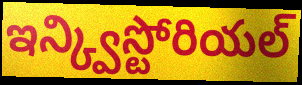
ఇన్క్విస్టోరియల్